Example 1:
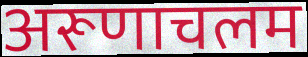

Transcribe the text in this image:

अरूणाचलम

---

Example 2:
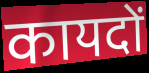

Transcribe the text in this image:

कायदों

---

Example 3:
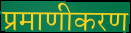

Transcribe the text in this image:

प्रमाणीकरण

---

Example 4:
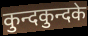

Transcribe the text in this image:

कुन्दकुन्दके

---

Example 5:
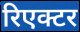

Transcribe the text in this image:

रिएक्टर